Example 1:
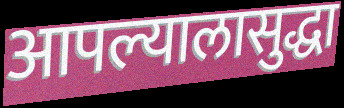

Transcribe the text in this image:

आपल्यालासुद्धा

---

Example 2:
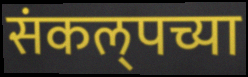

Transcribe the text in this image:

संकल्पच्या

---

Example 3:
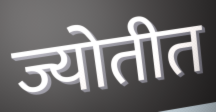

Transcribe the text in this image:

ज्योतीत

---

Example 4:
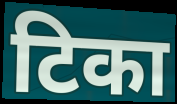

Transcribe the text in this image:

टिका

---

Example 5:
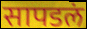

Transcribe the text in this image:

सापडलं